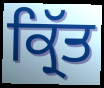
ਕ੍ਰਿੱਤ